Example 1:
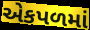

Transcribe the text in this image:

એકપળમાં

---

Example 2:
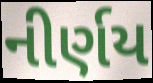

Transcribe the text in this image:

નીર્ણય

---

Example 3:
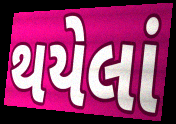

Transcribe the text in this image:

થયેલાં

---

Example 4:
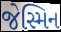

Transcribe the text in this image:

જેસ્મિન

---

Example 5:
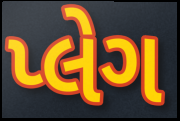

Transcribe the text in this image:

પ્લેગ